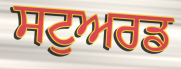
ਸਟੁਅਰਡ